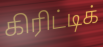
கிரிட்டிக்